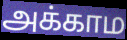
அக்காம